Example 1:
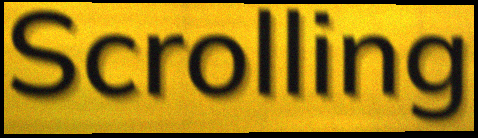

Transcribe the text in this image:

Scrolling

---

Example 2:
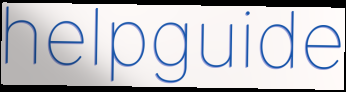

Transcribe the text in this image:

helpguide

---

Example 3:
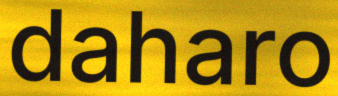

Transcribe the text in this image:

daharo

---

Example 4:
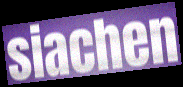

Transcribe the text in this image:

siachen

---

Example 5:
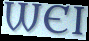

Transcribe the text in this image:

WEI